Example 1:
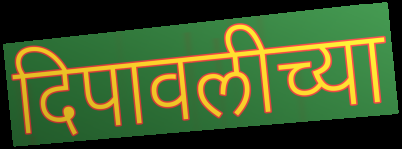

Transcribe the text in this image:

दिपावलीच्या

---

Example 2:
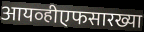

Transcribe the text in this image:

आयव्हीएफसारख्या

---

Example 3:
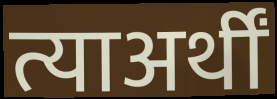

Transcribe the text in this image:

त्याअर्थीं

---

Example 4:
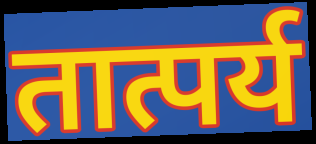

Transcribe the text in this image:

तात्पर्य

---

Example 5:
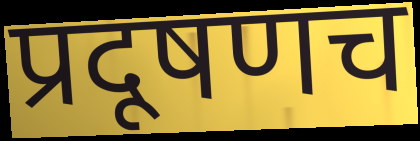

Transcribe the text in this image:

प्रदूषणच